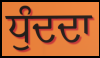
ਧੁੰਦਦਾ